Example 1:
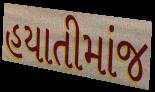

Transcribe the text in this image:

હયાતીમાંજ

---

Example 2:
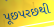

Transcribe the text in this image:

પૂછપરછથી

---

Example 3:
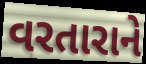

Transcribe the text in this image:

વરતારાને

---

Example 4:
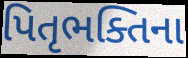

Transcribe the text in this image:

પિતૃભક્તિના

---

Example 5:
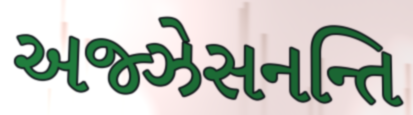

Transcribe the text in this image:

અજ્ઝેસનન્તિ